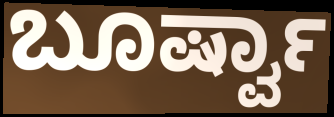
ಬೂರ್ಷ್ವಾ